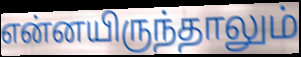
என்னயிருந்தாலும்